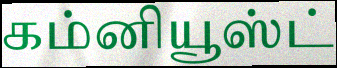
கம்னியூஸ்ட்